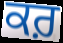
ਕਰ਼